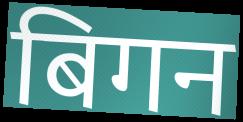
बिगन